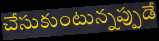
చేసుకుంటున్నప్పుడే